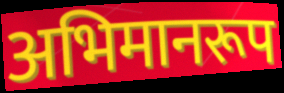
अभिमानरूप